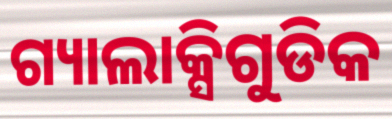
ଗ୍ୟାଲାକ୍ସିଗୁଡିକ